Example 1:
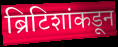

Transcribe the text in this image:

ब्रिटिशांकडून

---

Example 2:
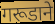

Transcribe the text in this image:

गरूडाने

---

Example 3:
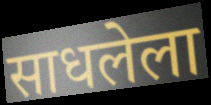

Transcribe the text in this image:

साधलेला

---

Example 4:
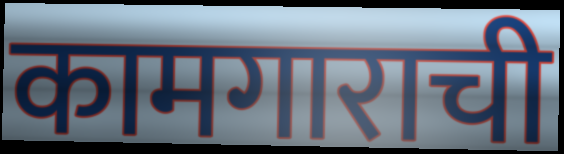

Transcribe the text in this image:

कामगाराची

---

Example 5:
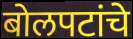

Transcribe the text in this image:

बोलपटांचे